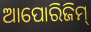
ଆପୋରିଜିମ୍